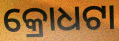
କ୍ରୋଧଟା